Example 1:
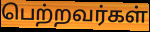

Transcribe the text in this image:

பெற்றவர்கள்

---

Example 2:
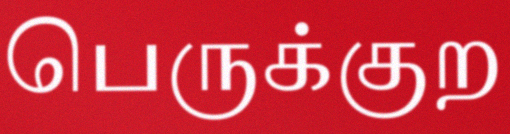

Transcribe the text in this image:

பெருக்குற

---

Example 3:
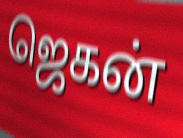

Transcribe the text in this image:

ஜெகன்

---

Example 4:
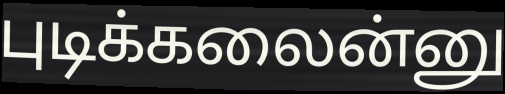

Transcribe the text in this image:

புடிக்கலைன்னு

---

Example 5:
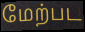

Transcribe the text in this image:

மேற்பட